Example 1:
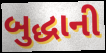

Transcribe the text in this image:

બુદ્ધાની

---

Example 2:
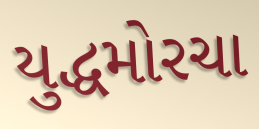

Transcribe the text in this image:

યુદ્ધમોરચા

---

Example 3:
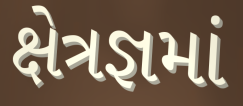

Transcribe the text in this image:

ક્ષેત્રજ્ઞમાં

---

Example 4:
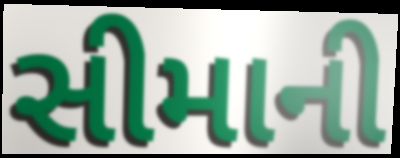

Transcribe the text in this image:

સીમાની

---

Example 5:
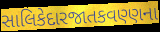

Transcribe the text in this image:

સાલિકેદારજાતકવણ્ણના